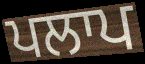
ਪਲਾਪ